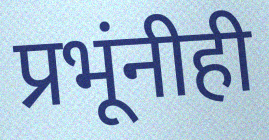
प्रभूंनीही